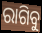
ରାଗିବୁ